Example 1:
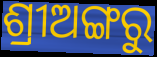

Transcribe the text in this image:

ଶ୍ରୀଅଙ୍ଗରୁ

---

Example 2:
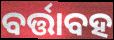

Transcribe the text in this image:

ବର୍ତ୍ତାବହ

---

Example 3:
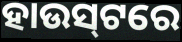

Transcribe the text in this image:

ହାଉସ୍‌ଟରେ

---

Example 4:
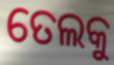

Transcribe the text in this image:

ତେଲକୁ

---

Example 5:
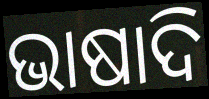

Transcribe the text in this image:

ଭାଷାଦି